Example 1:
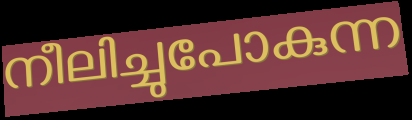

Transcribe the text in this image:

നീലിച്ചുപോകുന്ന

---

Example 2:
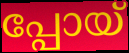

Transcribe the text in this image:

പ്പോയ്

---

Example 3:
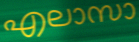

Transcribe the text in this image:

എലാസാ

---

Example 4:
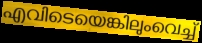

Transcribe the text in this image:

എവിടെയെങ്കിലുംവെച്ച്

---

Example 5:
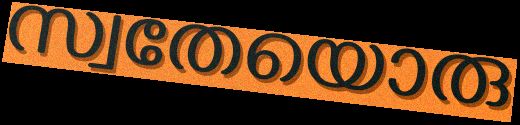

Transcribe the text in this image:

സ്വതേയൊരു